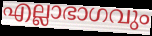
എല്ലാഭാഗവും